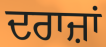
ਦਰਾਜ਼ਾਂ